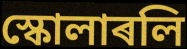
স্কোলাৰলি